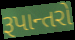
રૂપાન્તરો